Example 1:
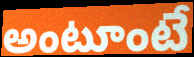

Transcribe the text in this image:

అంటూంటే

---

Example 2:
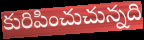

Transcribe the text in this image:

కురిపించుచున్నది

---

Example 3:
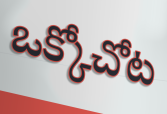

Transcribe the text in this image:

ఒక్కోచోట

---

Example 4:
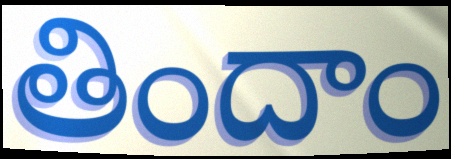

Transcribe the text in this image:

తిందాం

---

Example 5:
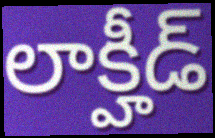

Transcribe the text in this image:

లాక్హీడ్